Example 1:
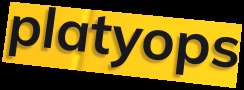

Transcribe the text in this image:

platyops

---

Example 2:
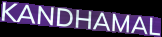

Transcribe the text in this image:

KANDHAMAL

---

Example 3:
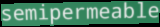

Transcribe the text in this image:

semipermeable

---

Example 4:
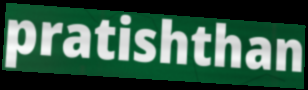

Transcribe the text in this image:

pratishthan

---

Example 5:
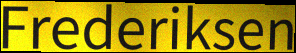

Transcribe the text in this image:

Frederiksen